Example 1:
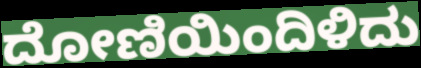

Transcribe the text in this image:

ದೋಣಿಯಿಂದಿಳಿದು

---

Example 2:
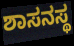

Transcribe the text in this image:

ಶಾಸನಸ್ಥ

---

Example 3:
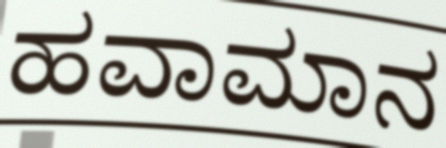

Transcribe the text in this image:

ಹವಾಮಾನ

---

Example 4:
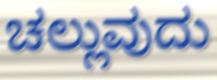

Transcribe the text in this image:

ಚಲ್ಲುವುದು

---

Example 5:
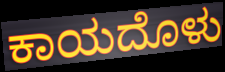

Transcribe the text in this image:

ಕಾಯದೊಳು